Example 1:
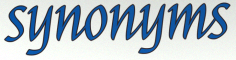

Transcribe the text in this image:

synonyms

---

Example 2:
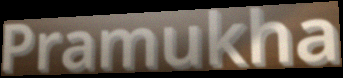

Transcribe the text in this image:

Pramukha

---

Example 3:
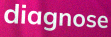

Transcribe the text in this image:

diagnose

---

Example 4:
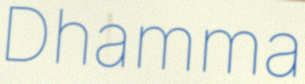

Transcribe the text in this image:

Dhamma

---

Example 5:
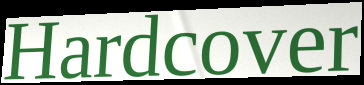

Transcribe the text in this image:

Hardcover